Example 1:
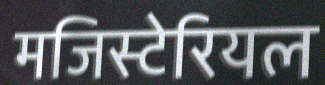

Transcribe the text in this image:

मजिस्टेरियल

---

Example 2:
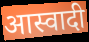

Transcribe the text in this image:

आस्वादी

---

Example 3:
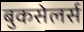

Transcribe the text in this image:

बुकसेलर्स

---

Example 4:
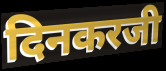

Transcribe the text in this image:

दिनकरजी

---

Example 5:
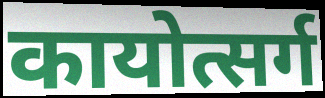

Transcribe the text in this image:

कायोत्सर्ग